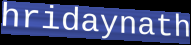
hridaynath